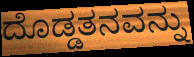
ದೊಡ್ಡತನವನ್ನು